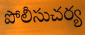
పోలీసుచర్య